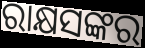
ରାକ୍ଷସଙ୍କର